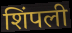
शिंपली